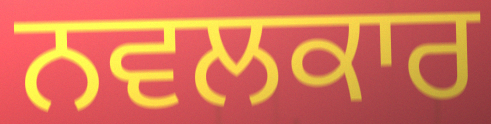
ਨਵਲਕਾਰ